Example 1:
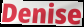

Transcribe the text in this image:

Denise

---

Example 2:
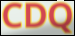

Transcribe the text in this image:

CDQ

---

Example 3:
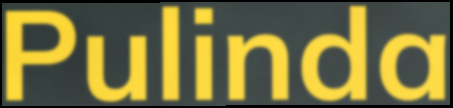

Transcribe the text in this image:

Pulinda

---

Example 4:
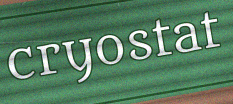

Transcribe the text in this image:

cryostat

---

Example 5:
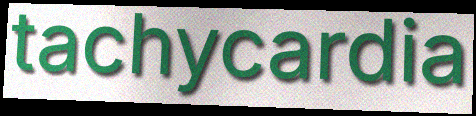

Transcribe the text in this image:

tachycardia